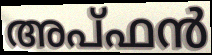
അപ്ഫൻ